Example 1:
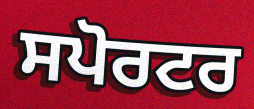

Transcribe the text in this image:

ਸਪੋਰਟਰ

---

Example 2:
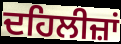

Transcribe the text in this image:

ਦਹਿਲੀਜ਼ਾਂ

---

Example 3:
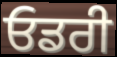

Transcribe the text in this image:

ਓਡਰੀ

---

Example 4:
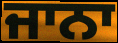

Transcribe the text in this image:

ਜਾਨਾ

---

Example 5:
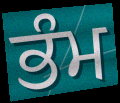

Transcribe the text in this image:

ਭੰਮ